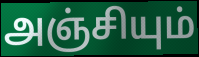
அஞ்சியும்